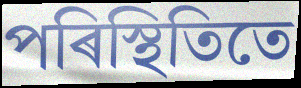
পৰিস্থিতিতে